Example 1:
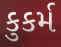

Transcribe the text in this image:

કુકર્મ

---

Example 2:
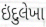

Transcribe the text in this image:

ઇંદુલેખા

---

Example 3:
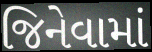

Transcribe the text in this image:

જિનેવામાં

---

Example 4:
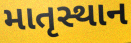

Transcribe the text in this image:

માતૃસ્થાન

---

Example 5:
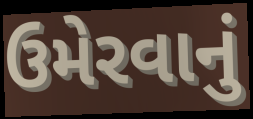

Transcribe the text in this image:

ઉમેરવાનું